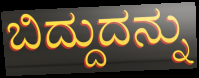
ಬಿದ್ದುದನ್ನು